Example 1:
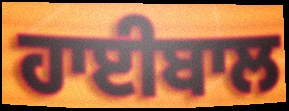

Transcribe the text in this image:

ਹਾਈਬਾਲ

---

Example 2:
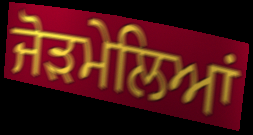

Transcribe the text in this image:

ਜੋੜਮੇਲਿਆਂ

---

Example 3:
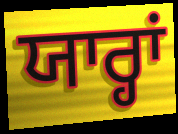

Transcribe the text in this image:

ਯਾਰ੍ਹਾਂ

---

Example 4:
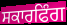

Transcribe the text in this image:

ਸਕਾਰਫਿੰਗ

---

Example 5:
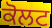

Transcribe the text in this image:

ਕੋਲਟ